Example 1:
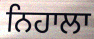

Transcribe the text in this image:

ਨਿਹਾਲਾ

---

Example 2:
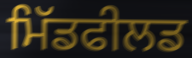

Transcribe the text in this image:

ਮਿੱਡਫੀਲਡ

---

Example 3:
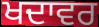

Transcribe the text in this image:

ਖਦਾਵਰ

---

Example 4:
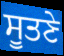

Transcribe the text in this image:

ਸੂਤਣੇ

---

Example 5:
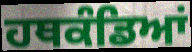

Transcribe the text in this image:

ਹਥਕੰਡਿਆਂ